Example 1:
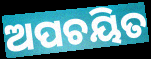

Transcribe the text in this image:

ଅପଚୟିତ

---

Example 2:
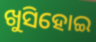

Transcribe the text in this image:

ଖୁସିହୋଇ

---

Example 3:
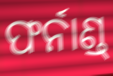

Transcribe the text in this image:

ଫର୍ନାଣ୍ଡ୍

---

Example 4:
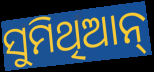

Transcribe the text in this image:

ସୁମିଥିଆନ୍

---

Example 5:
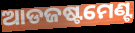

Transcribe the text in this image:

ଆଡଜଷ୍ଟମେଣ୍ଟ